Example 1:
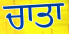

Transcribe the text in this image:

ਚਾਤਾ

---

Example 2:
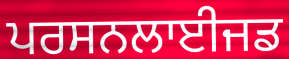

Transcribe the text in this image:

ਪਰਸਨਲਾਈਜਡ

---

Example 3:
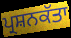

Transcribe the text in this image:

ਪ੍ਰਸ਼ਨਕੱਤਾ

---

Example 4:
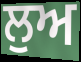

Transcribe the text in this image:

ਲੁਅ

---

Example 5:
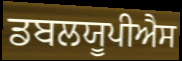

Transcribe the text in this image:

ਡਬਲਯੂਪੀਐਸ